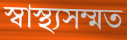
স্বাস্থ্যসম্মত